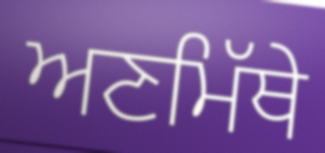
ਅਣਮਿੱਥੇ